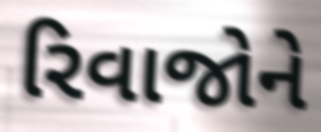
રિવાજોને